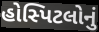
હોસ્પિટલોનું